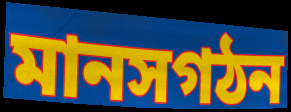
মানসগঠন